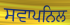
ਸਵਾਪਨਿਲ